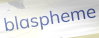
blaspheme